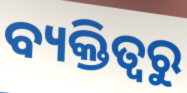
ବ୍ୟକ୍ତିତ୍ଵରୁ